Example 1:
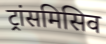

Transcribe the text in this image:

ट्रांसमिसिव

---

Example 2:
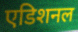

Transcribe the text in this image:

एडिशनल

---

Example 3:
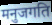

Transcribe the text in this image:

मनुजगति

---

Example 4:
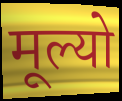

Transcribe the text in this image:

मूल्यो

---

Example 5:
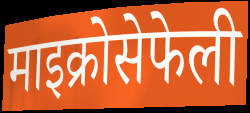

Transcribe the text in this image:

माइक्रोसेफेली